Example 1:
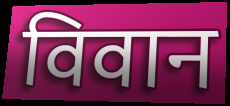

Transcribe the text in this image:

विवान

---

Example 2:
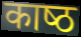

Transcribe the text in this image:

काष्‍ठ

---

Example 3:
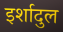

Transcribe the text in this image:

इर्शादुल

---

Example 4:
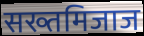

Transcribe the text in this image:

सख्तमिजाज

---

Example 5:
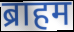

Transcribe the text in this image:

ब्राहम